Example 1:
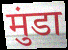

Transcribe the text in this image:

मुंडा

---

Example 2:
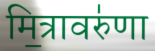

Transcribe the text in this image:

मि॒त्रावरु॑णा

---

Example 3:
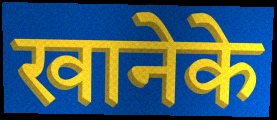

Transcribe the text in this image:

खानेके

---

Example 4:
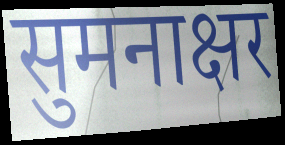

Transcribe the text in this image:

सुमनाक्षर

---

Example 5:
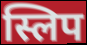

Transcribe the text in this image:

स्लिप